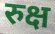
रुक्ष